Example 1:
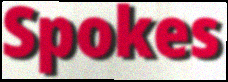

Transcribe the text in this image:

Spokes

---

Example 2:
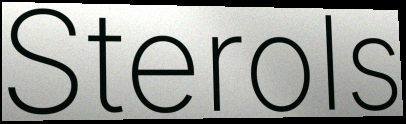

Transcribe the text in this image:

Sterols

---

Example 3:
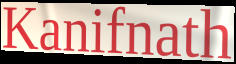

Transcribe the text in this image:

Kanifnath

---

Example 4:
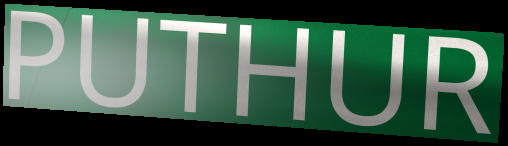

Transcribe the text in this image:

PUTHUR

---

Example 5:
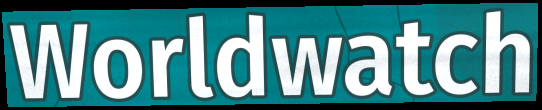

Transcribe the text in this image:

Worldwatch